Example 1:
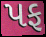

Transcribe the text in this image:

પફ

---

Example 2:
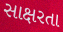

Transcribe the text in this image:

સાક્ષરતા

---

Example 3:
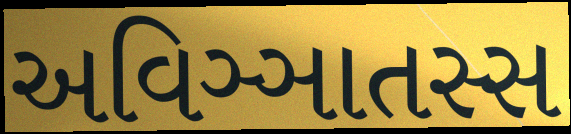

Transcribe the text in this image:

અવિઞ્ઞાતસ્સ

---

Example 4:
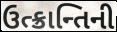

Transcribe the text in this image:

ઉત્ક્રાન્તિની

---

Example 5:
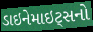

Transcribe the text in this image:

ડાઇનેમાઇટ્સનો